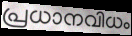
പ്രധാനവിധം